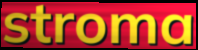
stroma